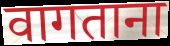
वागताना